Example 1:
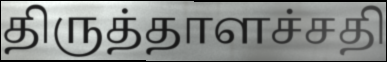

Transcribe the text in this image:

திருத்தாளச்சதி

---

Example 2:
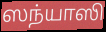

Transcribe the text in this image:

ஸந்யாஸி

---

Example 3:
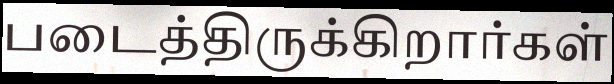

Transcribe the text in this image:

படைத்திருக்கிறார்கள்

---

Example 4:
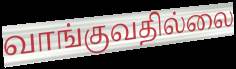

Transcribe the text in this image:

வாங்குவதில்லை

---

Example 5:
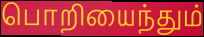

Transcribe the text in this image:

பொறியைந்தும்